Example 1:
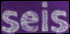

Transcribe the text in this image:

seis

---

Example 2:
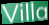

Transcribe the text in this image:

Villa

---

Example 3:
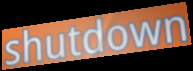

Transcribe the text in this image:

shutdown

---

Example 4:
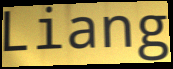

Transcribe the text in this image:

Liang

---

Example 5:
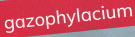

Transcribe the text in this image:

gazophylacium